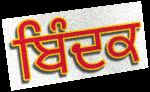
ਬਿੰਦਕ